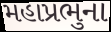
મહાપ્રભુના